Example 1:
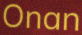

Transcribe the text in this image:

Onan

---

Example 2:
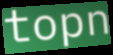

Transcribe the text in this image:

topn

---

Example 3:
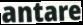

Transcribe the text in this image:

antare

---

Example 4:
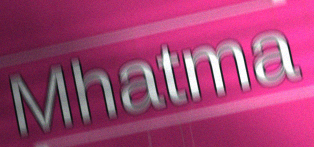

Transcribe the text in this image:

Mhatma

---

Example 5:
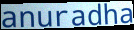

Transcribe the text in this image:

anuradha